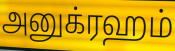
அனுக்ரஹம்